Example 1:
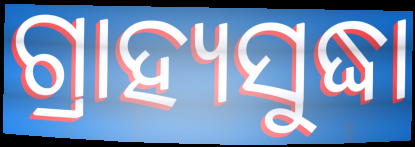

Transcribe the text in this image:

ଗ୍ରାହ୍ୟସୁଦ୍ଧା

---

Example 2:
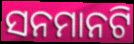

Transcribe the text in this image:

ସନମାନଟି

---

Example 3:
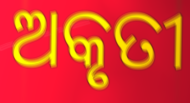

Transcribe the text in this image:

ଅକୃତୀ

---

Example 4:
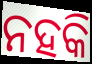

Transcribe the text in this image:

ନହକି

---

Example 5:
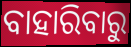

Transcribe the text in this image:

ବାହାରିବାରୁ